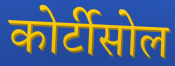
कोर्टीसोल